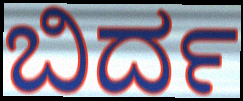
ಬಿರ್ದ